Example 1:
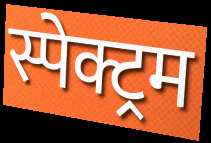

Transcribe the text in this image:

स्पेक्ट्रम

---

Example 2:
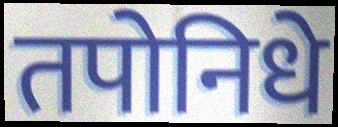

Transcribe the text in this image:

तपोनिधे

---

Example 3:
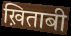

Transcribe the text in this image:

ख़िताबी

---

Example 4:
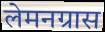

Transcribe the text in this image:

लेमनग्रास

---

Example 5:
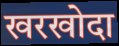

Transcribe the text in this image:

खरखोदा